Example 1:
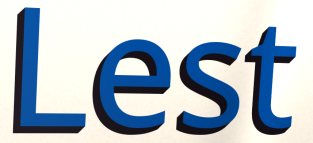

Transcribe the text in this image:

Lest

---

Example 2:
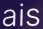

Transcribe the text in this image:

ais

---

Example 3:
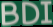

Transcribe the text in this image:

BDI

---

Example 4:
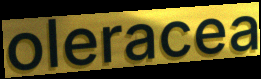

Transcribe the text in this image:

oleracea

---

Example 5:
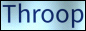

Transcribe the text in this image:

Throop